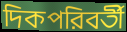
দিকপরিবর্তী